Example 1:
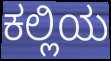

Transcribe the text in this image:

ಕಲ್ಲಿಯ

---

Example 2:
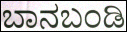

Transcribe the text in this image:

ಬಾನಬಂಡಿ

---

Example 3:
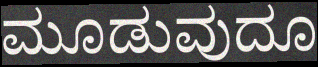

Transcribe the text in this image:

ಮೂಡುವುದೂ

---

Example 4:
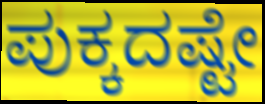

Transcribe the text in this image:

ಪುಕ್ಕದಷ್ಟೇ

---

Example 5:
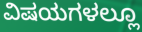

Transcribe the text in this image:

ವಿಷಯಗಳಲ್ಲೂ